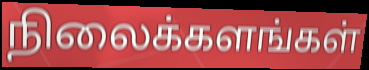
நிலைக்களங்கள்